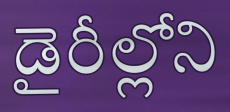
డైరీల్లోని